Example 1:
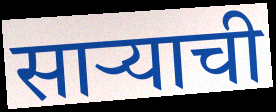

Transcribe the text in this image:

साऱ्याची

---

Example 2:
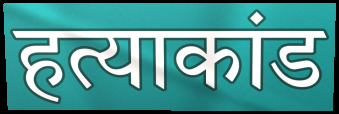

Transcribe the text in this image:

हत्याकांड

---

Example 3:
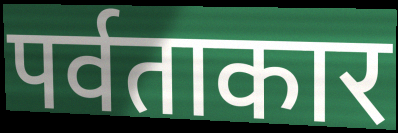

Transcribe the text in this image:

पर्वताकार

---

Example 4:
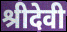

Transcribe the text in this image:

श्रीदेवी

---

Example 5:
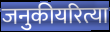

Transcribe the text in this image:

जनुकीयरित्या